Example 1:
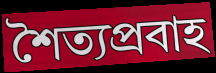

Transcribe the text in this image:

শৈত্যপ্রবাহ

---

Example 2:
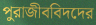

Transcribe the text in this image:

পুরাজীববিদদের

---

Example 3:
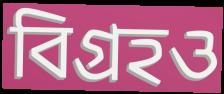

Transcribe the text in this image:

বিগ্রহও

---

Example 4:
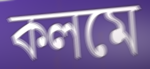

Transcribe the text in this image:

কলমে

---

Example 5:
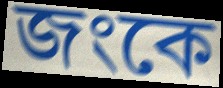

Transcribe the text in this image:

জংকে